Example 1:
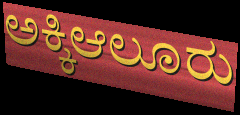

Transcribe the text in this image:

ಅಕ್ಕಿಆಲೂರು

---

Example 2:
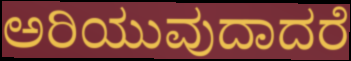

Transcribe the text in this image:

ಅರಿಯುವುದಾದರೆ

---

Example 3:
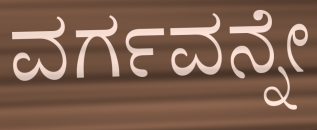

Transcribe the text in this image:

ವರ್ಗವನ್ನೇ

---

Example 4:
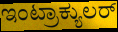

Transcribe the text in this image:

ಇಂಟ್ರಾಕ್ಯುಲರ್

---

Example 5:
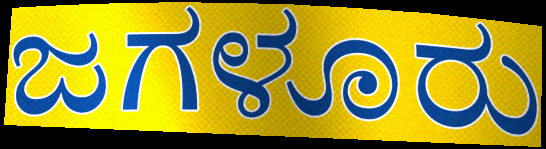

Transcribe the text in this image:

ಜಗಳೂರು